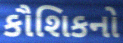
કૌશિકનો